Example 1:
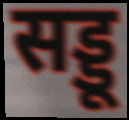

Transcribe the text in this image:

सड्डू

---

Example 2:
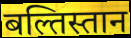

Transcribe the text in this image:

बल्तिस्तान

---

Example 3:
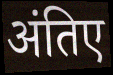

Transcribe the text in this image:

अंतिए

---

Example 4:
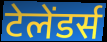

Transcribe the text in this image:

टेलेंडर्स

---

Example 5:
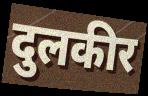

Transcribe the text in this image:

दुलकीर